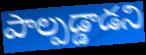
పాల్పడ్డాడని